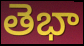
తెభా